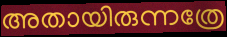
അതായിരുന്നത്രേ